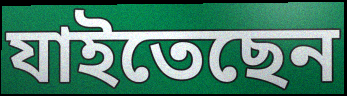
যাইতেছেন